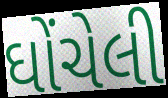
ઘોંચેલી